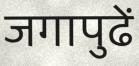
जगापुढें